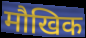
मौखिक